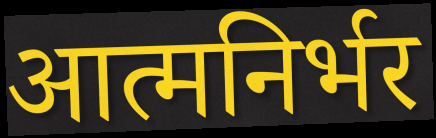
आत्मनिर्भर